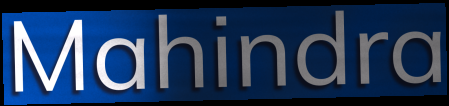
Mahindra